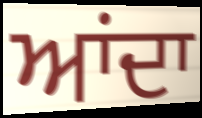
ਆਂਦਾ